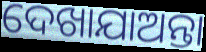
ଦେଖାଯାଅନ୍ତା